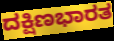
ದಕ್ಷಿಣಭಾರತ